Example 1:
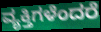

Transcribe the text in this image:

ವ್ಯಕ್ತಿಗಳೆಂದರೆ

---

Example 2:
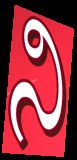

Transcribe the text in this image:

ನಿ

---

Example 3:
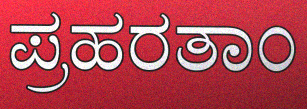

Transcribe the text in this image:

ಪ್ರಹರತಾಂ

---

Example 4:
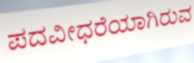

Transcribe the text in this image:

ಪದವೀಧರೆಯಾಗಿರುವ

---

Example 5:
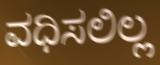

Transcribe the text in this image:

ವಧಿಸಲಿಲ್ಲ